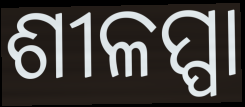
ଶୀଳପ୍ପା